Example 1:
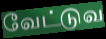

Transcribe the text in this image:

வேட்டுவ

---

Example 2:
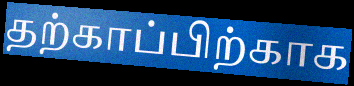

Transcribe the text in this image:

தற்காப்பிற்காக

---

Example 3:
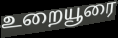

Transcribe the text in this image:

உறையூரை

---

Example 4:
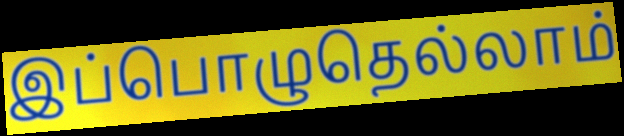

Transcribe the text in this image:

இப்பொழுதெல்லாம்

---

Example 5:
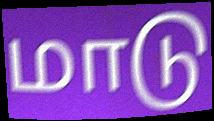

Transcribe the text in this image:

மாடு